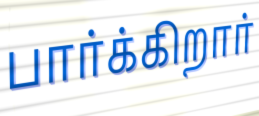
பார்க்கிறார்